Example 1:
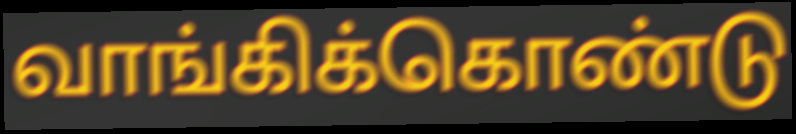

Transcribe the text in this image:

வாங்கிக்கொண்டு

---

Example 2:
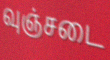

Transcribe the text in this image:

வுஞ்சடை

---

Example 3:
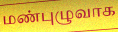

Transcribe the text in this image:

மண்புழுவாக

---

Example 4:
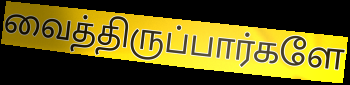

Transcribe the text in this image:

வைத்திருப்பார்களே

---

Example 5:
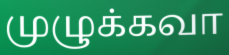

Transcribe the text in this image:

முழுக்கவா